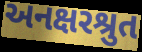
અનક્ષરશ્રુત